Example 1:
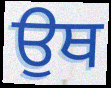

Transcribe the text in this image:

ਉਥ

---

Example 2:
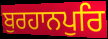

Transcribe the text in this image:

ਬੁਰਹਾਨਪੁਰਿ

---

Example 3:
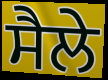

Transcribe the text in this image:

ਸੈਲੇ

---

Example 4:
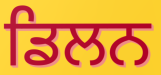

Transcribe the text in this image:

ਡਿਲਨ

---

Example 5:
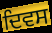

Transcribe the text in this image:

ਦਿਵਸ